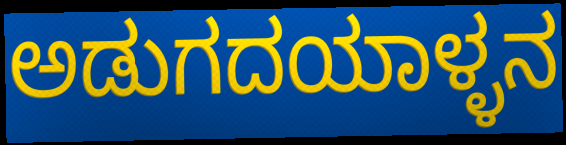
ಅಡುಗದಯಾಳ್ಳನ